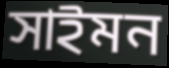
সাইমন